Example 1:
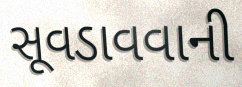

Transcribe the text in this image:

સૂવડાવવાની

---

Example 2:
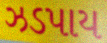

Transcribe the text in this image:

ઝડપાય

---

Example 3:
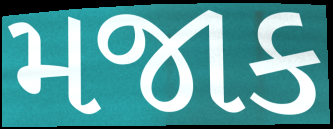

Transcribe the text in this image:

મજાક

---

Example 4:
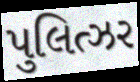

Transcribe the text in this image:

પુલિત્ઝર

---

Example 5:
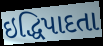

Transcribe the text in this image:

ઇદ્ધિપાદતા